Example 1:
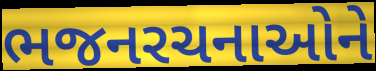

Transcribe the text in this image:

ભજનરચનાઓને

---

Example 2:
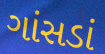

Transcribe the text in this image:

ગાંસડાં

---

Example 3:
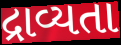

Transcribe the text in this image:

દ્રાવ્યતા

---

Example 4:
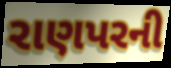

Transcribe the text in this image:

રાણપરની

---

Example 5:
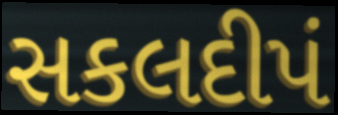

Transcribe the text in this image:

સકલદીપં